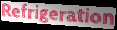
Refrigeration